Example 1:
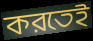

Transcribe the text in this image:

করতেই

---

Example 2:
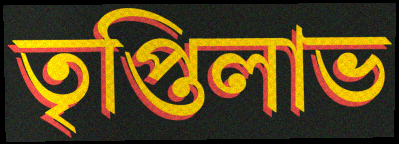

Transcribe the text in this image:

তৃপ্তিলাভ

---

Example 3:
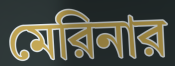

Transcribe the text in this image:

মেরিনার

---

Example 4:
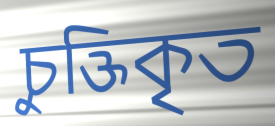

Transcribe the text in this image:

চুক্তিকৃত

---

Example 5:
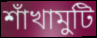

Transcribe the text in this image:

শাঁখামুটি